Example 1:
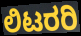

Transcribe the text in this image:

ಲಿಟರರಿ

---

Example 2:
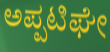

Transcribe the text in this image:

ಅಪ್ಪಟಿಘೇ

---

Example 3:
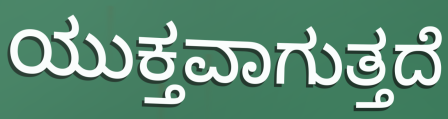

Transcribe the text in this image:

ಯುಕ್ತವಾಗುತ್ತದೆ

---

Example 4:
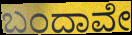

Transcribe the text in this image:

ಬಂದಾವೇ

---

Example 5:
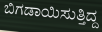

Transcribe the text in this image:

ಬಿಗಡಾಯಿಸುತ್ತಿದ್ದ